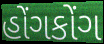
હોંગકોંગ